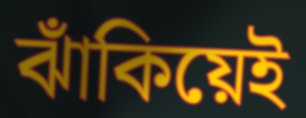
ঝাঁকিয়েই